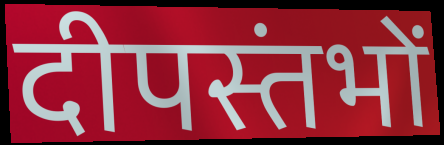
दीपस्तंभों